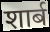
शार्ब